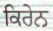
ਕਿਰੇਨ